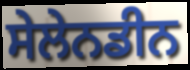
ਸੇਲੇਨਡੀਨ